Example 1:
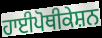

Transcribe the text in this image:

ਹਾਈਪੋਥੀਕੇਸ਼ਨ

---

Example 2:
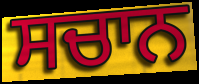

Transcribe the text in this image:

ਸਚਾਨ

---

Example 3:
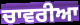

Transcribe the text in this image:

ਚਾਵਰੀਆ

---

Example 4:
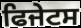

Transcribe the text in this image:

ਫਿਜੇਟਸ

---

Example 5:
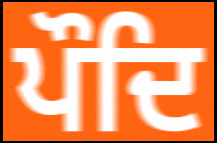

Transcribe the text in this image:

ਪੌਦਿ